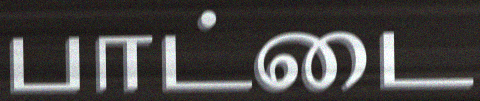
பாட்டை